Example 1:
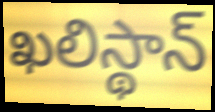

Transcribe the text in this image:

ఖలిస్థాన్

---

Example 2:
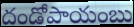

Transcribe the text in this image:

దండోపాయంబు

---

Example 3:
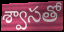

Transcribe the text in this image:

శ్వాసతో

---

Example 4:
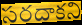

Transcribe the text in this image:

సరదాకని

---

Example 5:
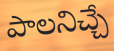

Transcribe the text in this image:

పాలనిచ్చే